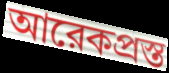
আরেকপ্রস্ত